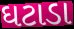
ઘટાડા